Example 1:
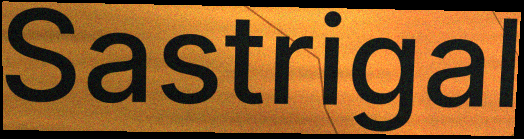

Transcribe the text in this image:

Sastrigal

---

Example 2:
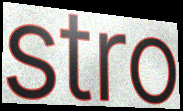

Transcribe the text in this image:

stro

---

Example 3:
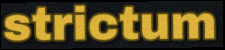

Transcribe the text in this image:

strictum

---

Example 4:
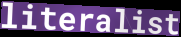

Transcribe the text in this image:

literalist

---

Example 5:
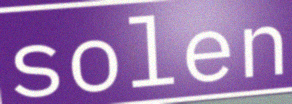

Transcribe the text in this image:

solen